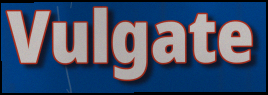
Vulgate